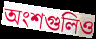
অংশগুলিও